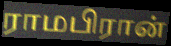
ராமபிரான்